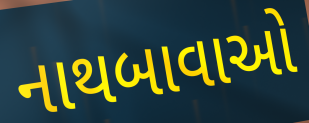
નાથબાવાઓ